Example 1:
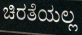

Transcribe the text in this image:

ಚಿರತೆಯಲ್ಲ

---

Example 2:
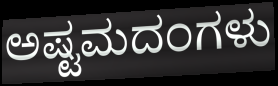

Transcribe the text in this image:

ಅಷ್ಟಮದಂಗಳು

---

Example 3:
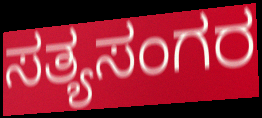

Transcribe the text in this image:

ಸತ್ಯಸಂಗರ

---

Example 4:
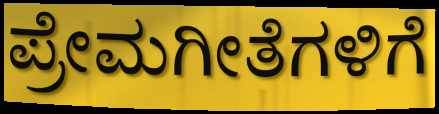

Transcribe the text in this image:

ಪ್ರೇಮಗೀತೆಗಳಿಗೆ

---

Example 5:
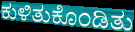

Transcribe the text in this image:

ಕುಳಿತುಕೊಂಡಿತು